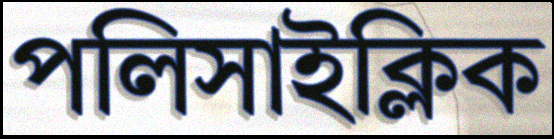
পলিসাইক্লিক